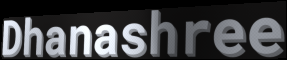
Dhanashree